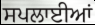
ਸਪਲਾਈਆਂ